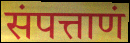
संपत्ताणं